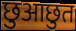
छुआछुत